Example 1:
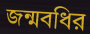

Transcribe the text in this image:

জন্মবধির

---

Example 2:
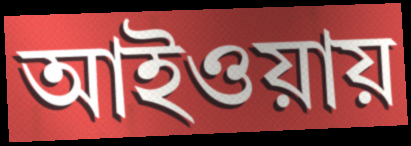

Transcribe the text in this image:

আইওয়ায়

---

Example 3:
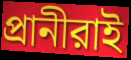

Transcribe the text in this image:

প্রানীরাই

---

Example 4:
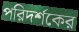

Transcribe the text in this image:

পরিদর্শকের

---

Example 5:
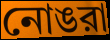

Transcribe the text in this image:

নোঙরা